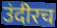
उंदीरच